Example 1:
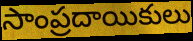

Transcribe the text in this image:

సాంప్రదాయికులు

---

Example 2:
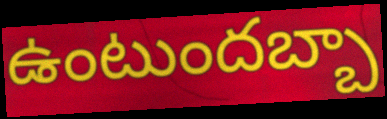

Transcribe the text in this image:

ఉంటుందబ్బా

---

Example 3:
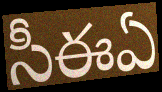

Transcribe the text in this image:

సీఈఏ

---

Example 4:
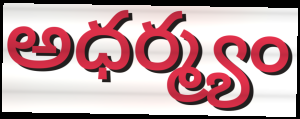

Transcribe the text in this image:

అధర్మ్యం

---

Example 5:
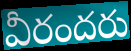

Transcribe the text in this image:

వీరందరు